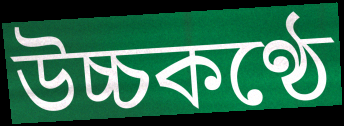
উচ্চকণ্ঠে